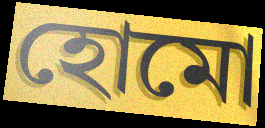
হোমো